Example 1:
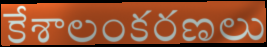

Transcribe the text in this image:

కేశాలంకరణలు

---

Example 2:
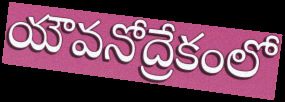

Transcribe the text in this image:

యౌవనోద్రేకంలో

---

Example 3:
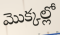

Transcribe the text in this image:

మొక్కల్లో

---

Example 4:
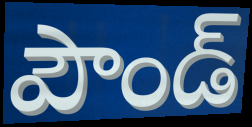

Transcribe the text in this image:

పౌండ్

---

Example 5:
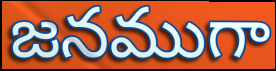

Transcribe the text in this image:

జనముగా